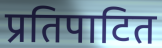
प्रतिपाटित